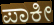
ಪಾಕೀ